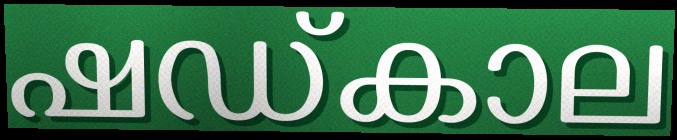
ഷഡ്കാല